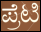
ಪ್ರೆಟಿ